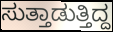
ಸುತ್ತಾಡುತ್ತಿದ್ದ